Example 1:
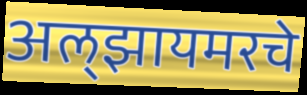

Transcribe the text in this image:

अल्झायमरचे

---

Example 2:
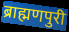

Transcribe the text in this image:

ब्राह्मणपुरी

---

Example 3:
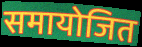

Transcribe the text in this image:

समायोजित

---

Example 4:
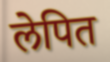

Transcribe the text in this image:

लेपित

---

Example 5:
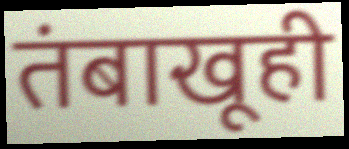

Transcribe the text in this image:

तंबाखूही